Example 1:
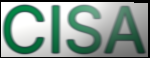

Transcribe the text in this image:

CISA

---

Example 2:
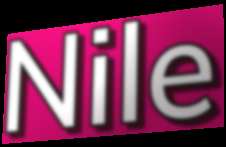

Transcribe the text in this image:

Nile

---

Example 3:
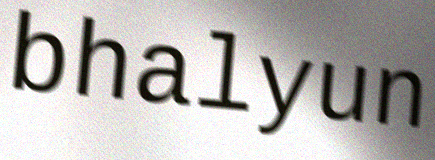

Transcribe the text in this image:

bhalyun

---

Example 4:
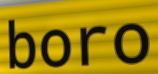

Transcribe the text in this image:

boro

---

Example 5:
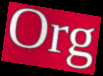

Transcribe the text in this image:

Org